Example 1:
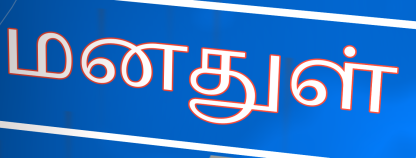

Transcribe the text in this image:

மனதுள்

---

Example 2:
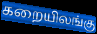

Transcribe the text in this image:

கறையிலங்கு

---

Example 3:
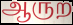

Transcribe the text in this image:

ஆருற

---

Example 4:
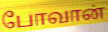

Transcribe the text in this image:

போவான்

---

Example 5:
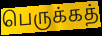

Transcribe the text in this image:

பெருக்கத்